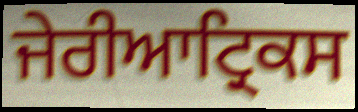
ਜੇਰੀਆਟ੍ਰਿਕਸ